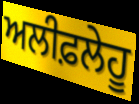
ਅਲੀਫ਼ਲੇਹੂ